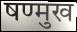
षण्मुख